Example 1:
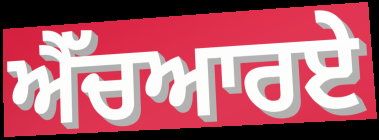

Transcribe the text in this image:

ਐੱਚਆਰਏ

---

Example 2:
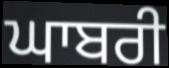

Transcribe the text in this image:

ਘਾਬਰੀ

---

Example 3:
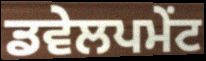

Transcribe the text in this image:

ਡਵੇਲਪਮੇਂਟ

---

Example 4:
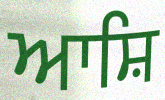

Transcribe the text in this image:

ਆਸ਼ਿ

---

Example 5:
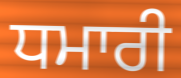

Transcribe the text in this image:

ਧਮਾਰੀ